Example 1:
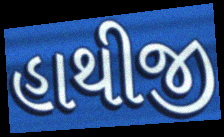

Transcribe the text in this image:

હાથીજી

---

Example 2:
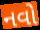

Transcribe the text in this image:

નવો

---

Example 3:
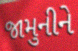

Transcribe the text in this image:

જામુનીને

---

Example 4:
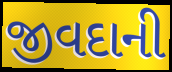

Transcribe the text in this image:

જીવદાની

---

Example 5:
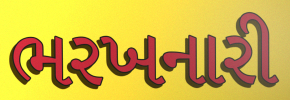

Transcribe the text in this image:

ભરખનારી